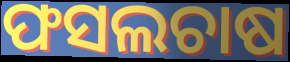
ଫସଲଚାଷ